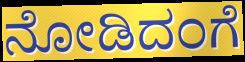
ನೋಡಿದಂಗೆ